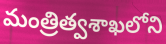
మంత్రిత్వశాఖలోని